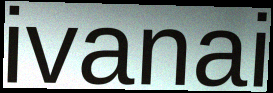
ivanai